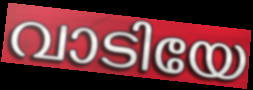
വാടിയേ